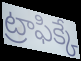
ట్రాఫిక్కే